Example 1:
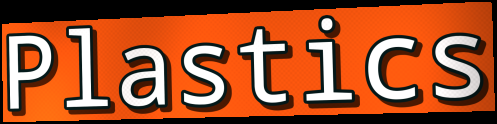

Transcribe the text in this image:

Plastics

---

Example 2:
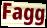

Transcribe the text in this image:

Fagg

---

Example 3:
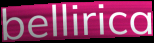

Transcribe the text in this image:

bellirica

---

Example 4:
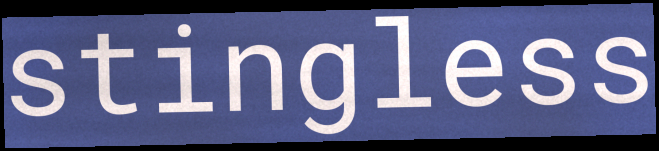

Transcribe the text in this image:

stingless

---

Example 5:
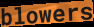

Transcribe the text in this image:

blowers